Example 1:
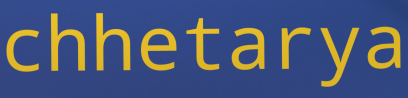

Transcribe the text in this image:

chhetarya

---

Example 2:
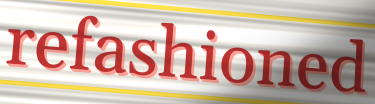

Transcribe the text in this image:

refashioned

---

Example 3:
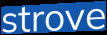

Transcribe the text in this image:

strove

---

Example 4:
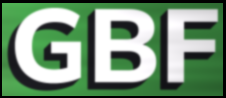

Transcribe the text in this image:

GBF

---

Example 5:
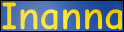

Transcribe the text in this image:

Inanna